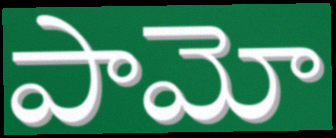
పామో